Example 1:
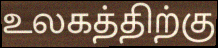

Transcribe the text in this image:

உலகத்திற்கு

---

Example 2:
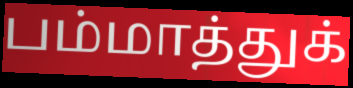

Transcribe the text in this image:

பம்மாத்துக்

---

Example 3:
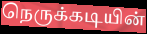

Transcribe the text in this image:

நெருக்கடியின்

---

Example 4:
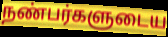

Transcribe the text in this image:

நண்பர்களுடைய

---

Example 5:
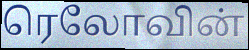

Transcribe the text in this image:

ரெலோவின்